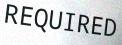
REQUIRED